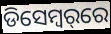
ଡିସେମ୍ବର୍‌ରେ